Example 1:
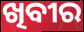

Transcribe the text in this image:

ଖିବୀର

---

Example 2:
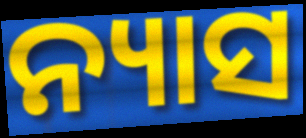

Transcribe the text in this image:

ନ୍ୟାସ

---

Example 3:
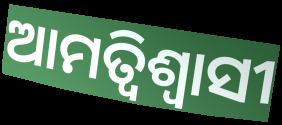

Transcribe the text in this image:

ଆମତ୍ବିଶ୍ୱାସୀ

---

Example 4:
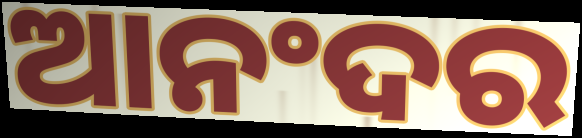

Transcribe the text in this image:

ଆନଂଦର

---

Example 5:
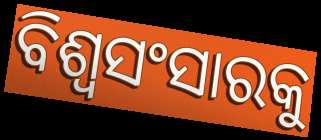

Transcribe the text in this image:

ବିଶ୍ୱସଂସାରକୁ